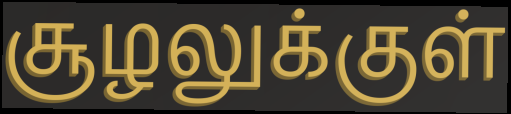
சூழலுக்குள்